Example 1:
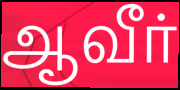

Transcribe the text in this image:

ஆவீர்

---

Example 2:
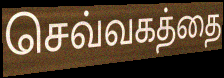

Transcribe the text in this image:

செவ்வகத்தை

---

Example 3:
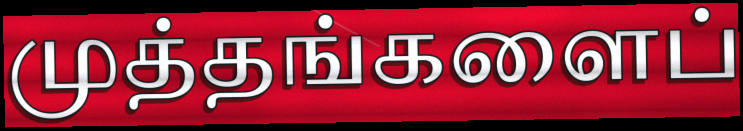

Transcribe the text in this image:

முத்தங்களைப்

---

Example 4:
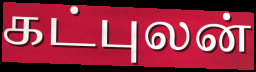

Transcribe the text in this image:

கட்புலன்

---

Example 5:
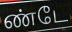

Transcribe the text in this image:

ண்டே